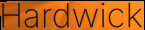
Hardwick